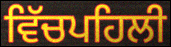
ਵਿੱਚਪਹਿਲੀ